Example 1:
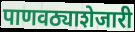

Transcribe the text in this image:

पाणवठ्याशेजारी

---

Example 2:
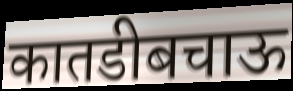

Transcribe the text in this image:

कातडीबचाऊ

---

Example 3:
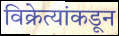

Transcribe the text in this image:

विक्रेत्यांकडून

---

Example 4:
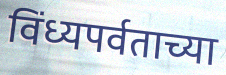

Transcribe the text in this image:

विंध्यपर्वताच्या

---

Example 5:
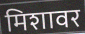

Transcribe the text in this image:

मिशावर